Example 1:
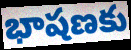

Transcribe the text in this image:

భాషణకు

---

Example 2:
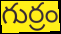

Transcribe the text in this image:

గుర్రం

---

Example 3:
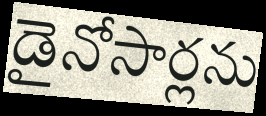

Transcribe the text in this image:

డైనోసార్లను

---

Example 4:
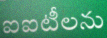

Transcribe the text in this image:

ఐఐటీలను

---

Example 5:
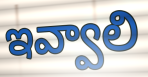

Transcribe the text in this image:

ఇవ్వాలి